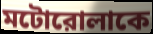
মটোরোলাকে